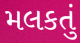
મલકતું